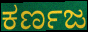
ಕರ್ಣಜ